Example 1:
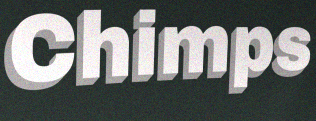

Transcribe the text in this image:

Chimps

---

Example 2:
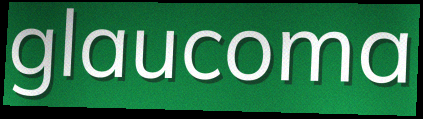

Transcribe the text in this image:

glaucoma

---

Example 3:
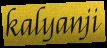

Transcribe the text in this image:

kalyanji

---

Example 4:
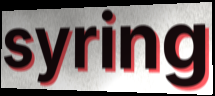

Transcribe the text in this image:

syring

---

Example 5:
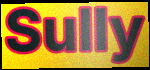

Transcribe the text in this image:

Sully